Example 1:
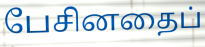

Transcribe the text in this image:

பேசினதைப்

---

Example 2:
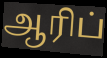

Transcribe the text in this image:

ஆரிப்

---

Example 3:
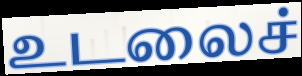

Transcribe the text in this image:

உடலைச்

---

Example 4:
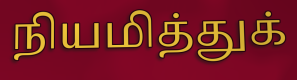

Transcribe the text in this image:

நியமித்துக்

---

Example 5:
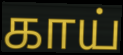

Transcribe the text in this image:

காய்